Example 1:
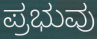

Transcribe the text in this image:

ಪ್ರಭುವು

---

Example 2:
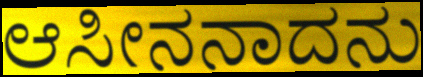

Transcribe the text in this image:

ಆಸೀನನಾದನು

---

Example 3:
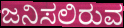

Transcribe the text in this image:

ಜನಿಸಲಿರುವ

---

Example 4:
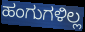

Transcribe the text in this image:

ಹಂಗುಗಳಿಲ್ಲ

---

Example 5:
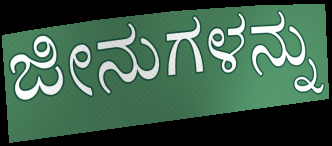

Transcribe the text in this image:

ಜೀನುಗಳನ್ನು